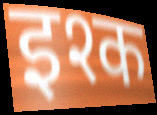
इश्क